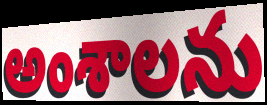
అంశాలను